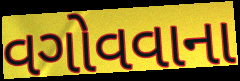
વગોવવાના